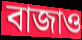
বাজাও